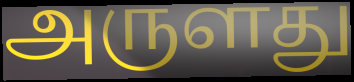
அருளது